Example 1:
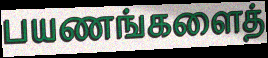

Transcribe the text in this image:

பயணங்களைத்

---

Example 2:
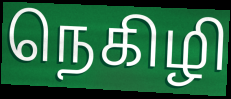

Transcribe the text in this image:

நெகிழி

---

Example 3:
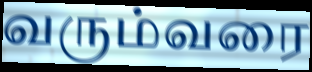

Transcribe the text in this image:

வரும்வரை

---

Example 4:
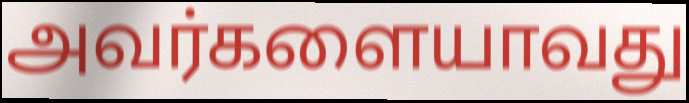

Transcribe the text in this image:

அவர்களையாவது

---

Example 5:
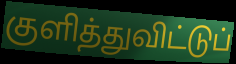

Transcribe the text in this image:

குளித்துவிட்டுப்